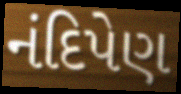
નંદિપેણ